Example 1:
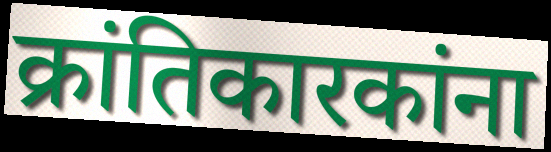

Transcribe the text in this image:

क्रांतिकारकांना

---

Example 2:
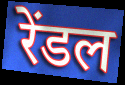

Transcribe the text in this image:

रेंडल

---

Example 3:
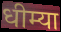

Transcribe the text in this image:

धीम्या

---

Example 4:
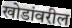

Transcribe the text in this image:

खोडांवरील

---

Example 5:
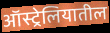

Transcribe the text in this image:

ऑस्ट्रेलियातील